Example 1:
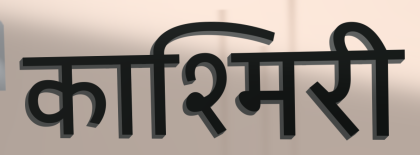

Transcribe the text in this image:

काश्मिरी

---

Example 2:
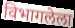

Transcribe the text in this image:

विभागलेला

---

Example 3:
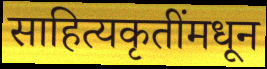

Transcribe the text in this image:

साहित्यकृतींमधून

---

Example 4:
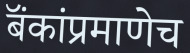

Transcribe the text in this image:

बॅंकांप्रमाणेच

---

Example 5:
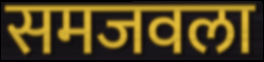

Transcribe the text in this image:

समजवला